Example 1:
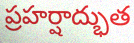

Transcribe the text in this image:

ప్రహర్షాద్భుత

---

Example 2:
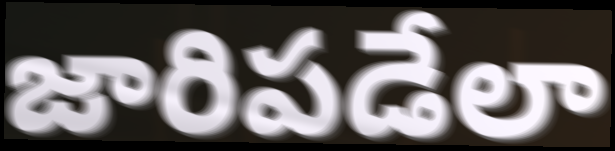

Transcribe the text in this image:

జారిపడేలా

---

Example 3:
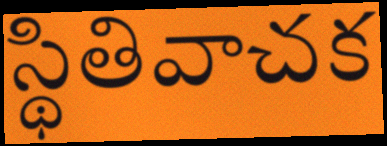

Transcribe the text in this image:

స్థితివాచక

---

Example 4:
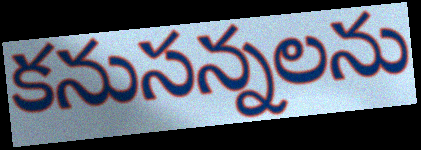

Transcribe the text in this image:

కనుసన్నలను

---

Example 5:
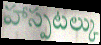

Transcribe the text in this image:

హాస్పటల్కు